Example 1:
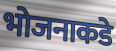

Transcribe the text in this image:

भोजनाकडे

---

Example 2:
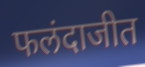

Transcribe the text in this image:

फलंदाजीत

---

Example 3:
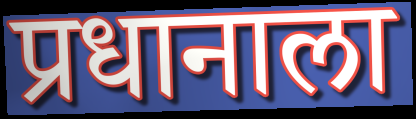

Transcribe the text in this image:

प्रधानाला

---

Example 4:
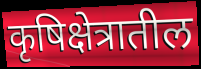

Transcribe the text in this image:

कृषिक्षेत्रातील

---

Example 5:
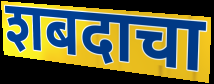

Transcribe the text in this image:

शबदाचा